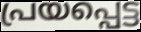
പ്രയപ്പെട്ട